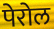
पेरोल